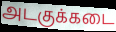
அடகுக்கடை